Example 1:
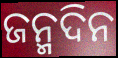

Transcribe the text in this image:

ଜନ୍ମଦିନ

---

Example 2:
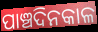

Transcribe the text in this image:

ପାଞ୍ଚଦିନକାଳ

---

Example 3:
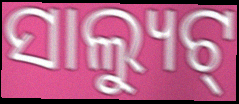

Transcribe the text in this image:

ସାଲ୍ୟୁଟ୍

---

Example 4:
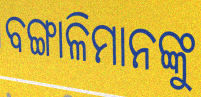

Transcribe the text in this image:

ବଙ୍ଗାଳିମାନଙ୍କୁ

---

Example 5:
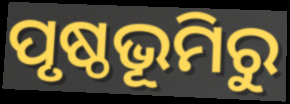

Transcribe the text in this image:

ପୃଷ୍ଠଭୂମିରୁ